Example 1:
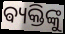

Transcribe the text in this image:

ଵ୍ୟକ୍ତିଙ୍କୁ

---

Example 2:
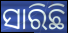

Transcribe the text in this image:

ସାରିଛି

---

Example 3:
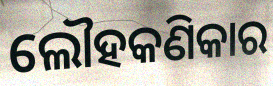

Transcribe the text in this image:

ଲୌହକଣିକାର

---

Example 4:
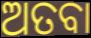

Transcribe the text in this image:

ଅତବା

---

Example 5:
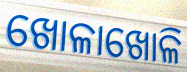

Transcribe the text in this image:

ଖୋଳାଖୋଳି